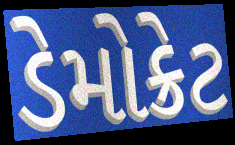
ડેમોક્રેટ